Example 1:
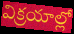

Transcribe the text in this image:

విక్రయాల్లో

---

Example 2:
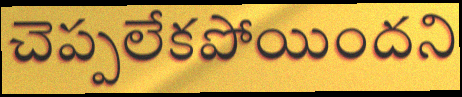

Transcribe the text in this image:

చెప్పలేకపోయిందని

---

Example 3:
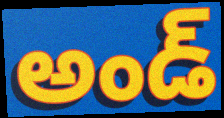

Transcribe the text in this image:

అండ్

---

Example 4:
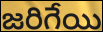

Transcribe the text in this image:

జరిగేయి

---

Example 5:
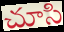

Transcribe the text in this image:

చూసి